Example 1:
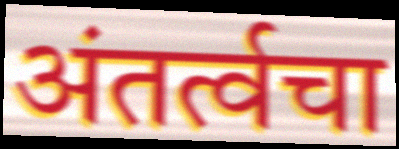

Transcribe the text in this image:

अंतर्त्वचा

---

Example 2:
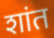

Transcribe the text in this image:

शांत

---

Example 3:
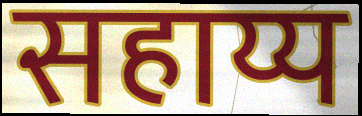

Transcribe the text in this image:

सहाय्य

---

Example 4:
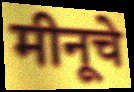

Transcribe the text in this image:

मीनूचे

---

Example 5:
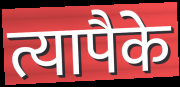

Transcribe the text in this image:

त्यापैके